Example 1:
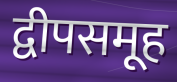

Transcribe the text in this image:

द्वीपसमूह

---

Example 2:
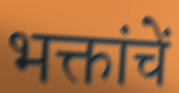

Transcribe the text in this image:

भक्तांचें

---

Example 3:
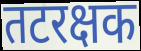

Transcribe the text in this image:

तटरक्षक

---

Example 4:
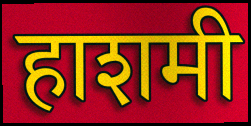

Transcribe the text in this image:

हाशमी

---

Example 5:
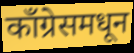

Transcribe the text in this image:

काँग्रेसमधून